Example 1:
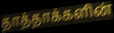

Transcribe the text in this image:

தாத்தாக்களின்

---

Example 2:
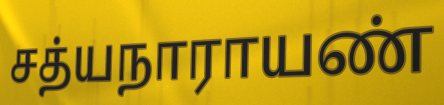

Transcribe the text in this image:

சத்யநாராயண்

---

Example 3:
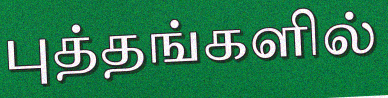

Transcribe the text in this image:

புத்தங்களில்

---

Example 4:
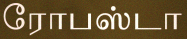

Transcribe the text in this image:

ரோபஸ்டா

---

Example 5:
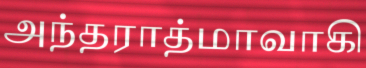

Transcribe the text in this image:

அந்தராத்மாவாகி